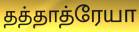
தத்தாத்ரேயா